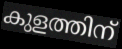
കുളത്തിന്